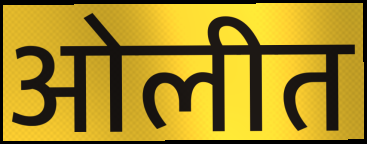
ओलीत